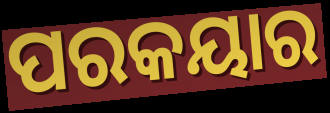
ପରକୟାର